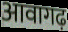
आवागढ़